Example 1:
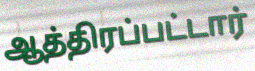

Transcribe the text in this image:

ஆத்திரப்பட்டார்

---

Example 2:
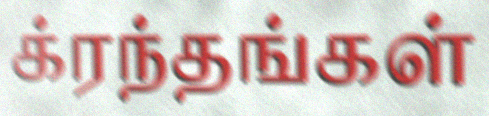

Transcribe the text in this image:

க்ரந்தங்கள்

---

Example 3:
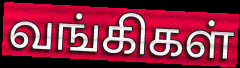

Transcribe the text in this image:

வங்கிகள்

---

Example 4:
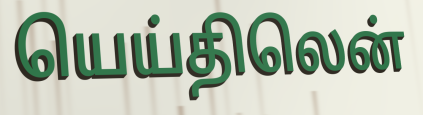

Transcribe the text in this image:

யெய்திலென்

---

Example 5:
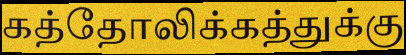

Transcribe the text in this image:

கத்தோலிக்கத்துக்கு